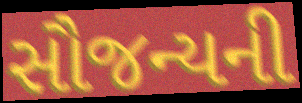
સૌજન્યની